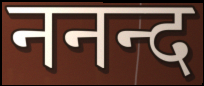
ननन्द